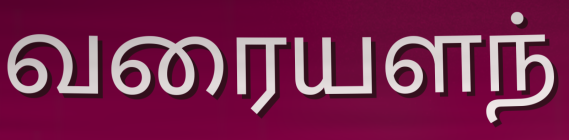
வரையளந்